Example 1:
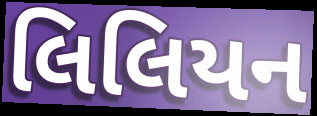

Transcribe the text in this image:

લિલિયન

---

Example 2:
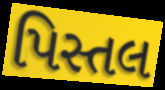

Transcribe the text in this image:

પિસ્તલ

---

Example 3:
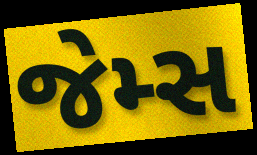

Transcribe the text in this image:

જેમ્સ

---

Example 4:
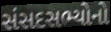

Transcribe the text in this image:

સંસદસભ્યોનો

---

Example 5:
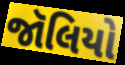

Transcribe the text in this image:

જૉલિયો